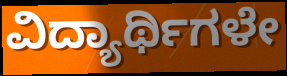
ವಿದ್ಯಾರ್ಥಿಗಳೇ